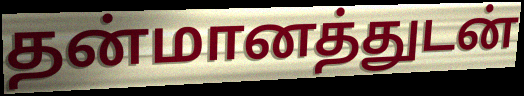
தன்மானத்துடன்